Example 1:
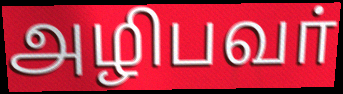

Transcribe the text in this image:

அழிபவர்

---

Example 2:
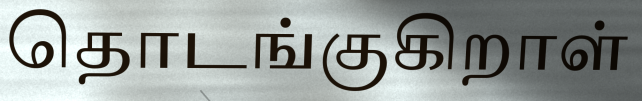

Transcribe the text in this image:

தொடங்குகிறாள்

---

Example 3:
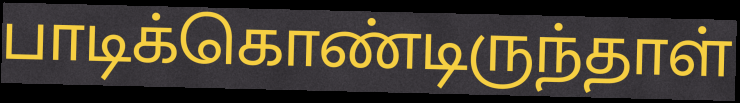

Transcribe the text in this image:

பாடிக்கொண்டிருந்தாள்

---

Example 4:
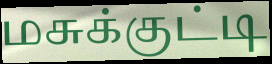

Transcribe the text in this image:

மசுக்குட்டி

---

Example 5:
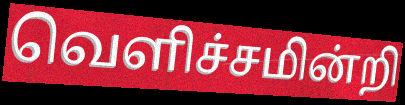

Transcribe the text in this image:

வெளிச்சமின்றி